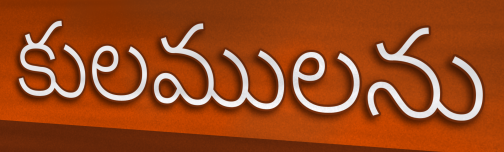
కులములను